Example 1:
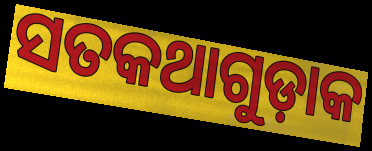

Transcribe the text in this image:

ସତକଥାଗୁଡ଼ାକ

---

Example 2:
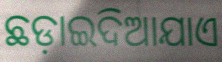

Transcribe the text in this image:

ଛଡ଼ାଇଦିଆଯାଏ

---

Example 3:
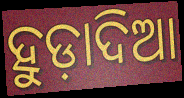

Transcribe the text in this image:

ହୁଡ଼ାଦିଆ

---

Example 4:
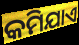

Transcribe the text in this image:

କମିଯାଏ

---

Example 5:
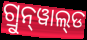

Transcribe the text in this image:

ଗ୍ରୁନ୍‌ୱାଲ୍‌ଡ